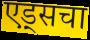
एड्सचा